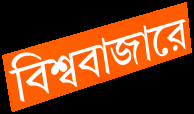
বিশ্ববাজারে